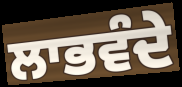
ਲਾਭਵੰਦੇ